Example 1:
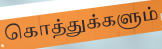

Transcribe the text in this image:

கொத்துக்களும்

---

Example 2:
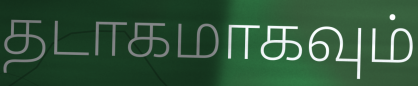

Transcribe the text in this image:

தடாகமாகவும்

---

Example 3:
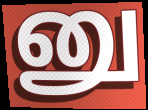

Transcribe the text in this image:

னு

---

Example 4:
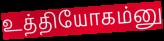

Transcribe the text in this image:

உத்தியோகம்னு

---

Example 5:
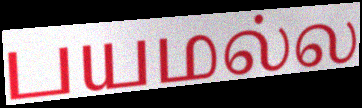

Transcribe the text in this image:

பயமல்ல